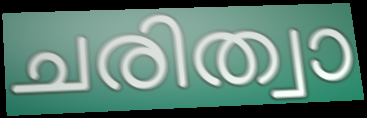
ചരിത്വാ